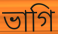
ভাগি